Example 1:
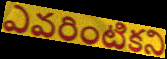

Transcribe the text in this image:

ఎవరింటికని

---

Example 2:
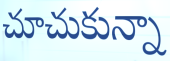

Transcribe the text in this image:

చూచుకున్నా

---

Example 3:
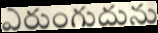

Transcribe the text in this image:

ఎరుంగుదును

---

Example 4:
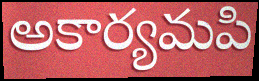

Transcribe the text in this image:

అకార్యమపి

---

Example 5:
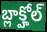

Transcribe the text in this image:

బ్లాక్హోల్